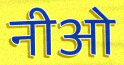
नीओ